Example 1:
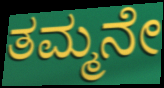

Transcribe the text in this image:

ತಮ್ಮನೇ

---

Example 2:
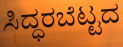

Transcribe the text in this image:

ಸಿದ್ಧರಬೆಟ್ಟದ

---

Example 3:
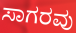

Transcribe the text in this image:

ಸಾಗರವು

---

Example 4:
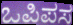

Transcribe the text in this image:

ಒಪಿಪಸ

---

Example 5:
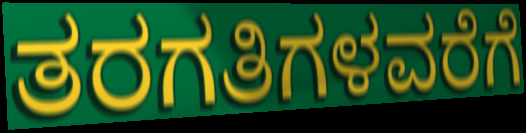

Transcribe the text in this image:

ತರಗತಿಗಳವರೆಗೆ